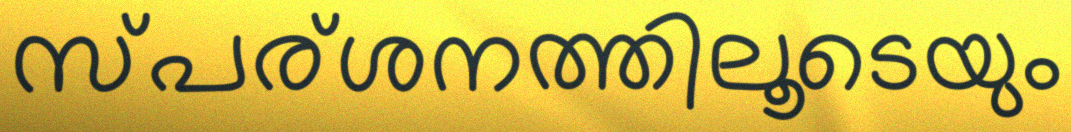
സ്പര്ശനത്തിലൂടെയും